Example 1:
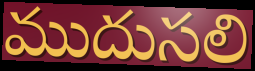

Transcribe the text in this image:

ముదుసలి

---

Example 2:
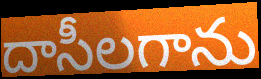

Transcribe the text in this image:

దాసీలగాను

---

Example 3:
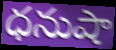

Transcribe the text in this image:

ధనుషా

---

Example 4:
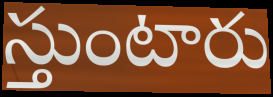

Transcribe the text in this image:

స్తుంటారు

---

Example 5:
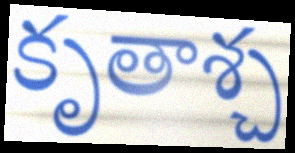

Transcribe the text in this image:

కృతాశ్చ